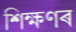
শিক্ষণৰ